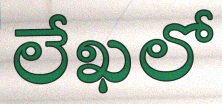
లేఖలో